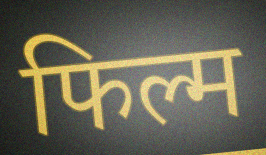
फिल्म